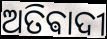
ଅତିଵାଦୀ